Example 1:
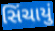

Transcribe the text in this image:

સિંચાયું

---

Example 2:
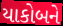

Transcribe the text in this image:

યાકોબને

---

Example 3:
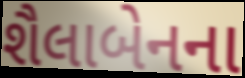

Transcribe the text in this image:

શૈલાબેનના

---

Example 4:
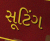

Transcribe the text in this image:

સૂટિંગ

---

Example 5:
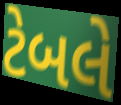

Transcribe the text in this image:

ટેબલે